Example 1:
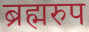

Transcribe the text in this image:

ब्रह्मरुप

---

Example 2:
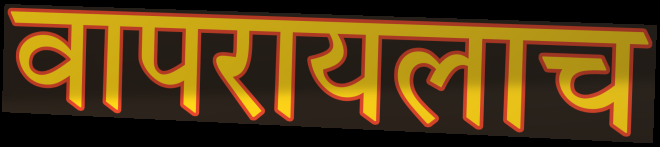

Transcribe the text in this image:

वापरायलाच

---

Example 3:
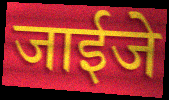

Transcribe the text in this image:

जाईजे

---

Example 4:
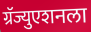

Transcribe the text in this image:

ग्रॅज्युएशनला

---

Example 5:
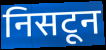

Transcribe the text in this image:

निसटून